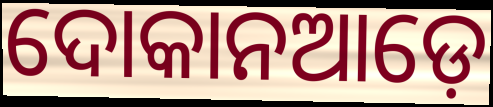
ଦୋକାନଆଡ଼େ